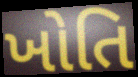
ખોતિ